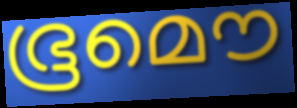
ഭൂമൌ